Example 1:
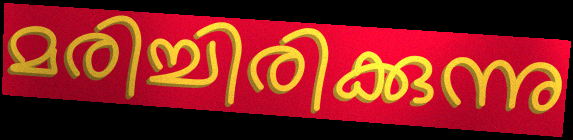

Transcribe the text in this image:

മരിച്ചിരിക്കുന്നു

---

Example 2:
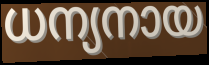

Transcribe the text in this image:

ധന്യനായ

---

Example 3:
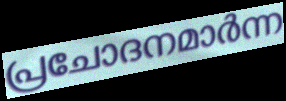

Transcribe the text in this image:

പ്രചോദനമാർന്ന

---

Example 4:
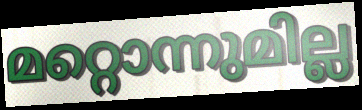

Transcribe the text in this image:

മറ്റൊന്നുമില്ല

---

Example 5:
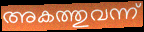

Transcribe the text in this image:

അകത്തുവന്ന്